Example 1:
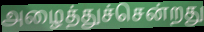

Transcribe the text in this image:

அழைத்துச்சென்றது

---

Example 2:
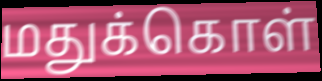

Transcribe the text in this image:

மதுக்கொள்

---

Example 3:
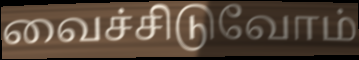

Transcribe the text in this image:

வைச்சிடுவோம்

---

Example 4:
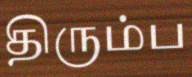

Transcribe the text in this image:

திரும்ப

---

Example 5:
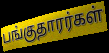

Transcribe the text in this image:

பங்குதாரர்கள்